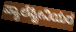
ಪ್ಯಾಲೆಸ್ಟೀನಿಯರ